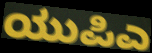
ಯುಪಿಎ